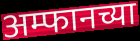
अम्फानच्या